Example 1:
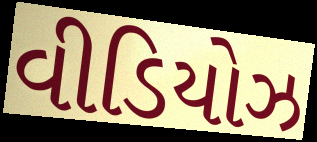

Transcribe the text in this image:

વીડિયોઝ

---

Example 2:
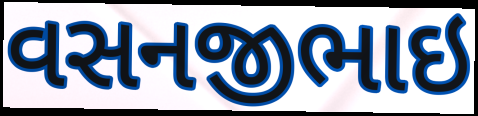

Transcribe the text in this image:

વસનજીભાઇ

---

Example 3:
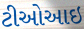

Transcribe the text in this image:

ટીઓઆઇ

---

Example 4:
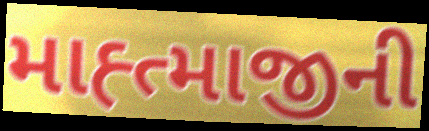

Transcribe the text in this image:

માહ્ત્માજીની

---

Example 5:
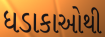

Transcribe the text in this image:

ધડાકાઓથી